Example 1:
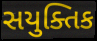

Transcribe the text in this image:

સયુક્તિક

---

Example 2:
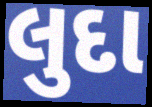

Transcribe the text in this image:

લુદા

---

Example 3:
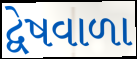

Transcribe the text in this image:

દ્વેષવાળા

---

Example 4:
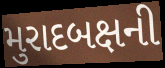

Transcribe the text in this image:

મુરાદબક્ષની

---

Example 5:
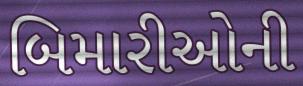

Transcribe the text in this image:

બિમારીઓની